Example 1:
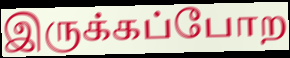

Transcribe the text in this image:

இருக்கப்போற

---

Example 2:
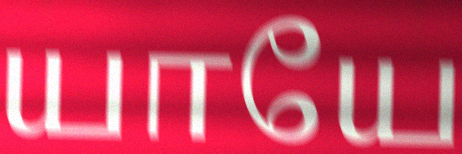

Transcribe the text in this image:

யாயே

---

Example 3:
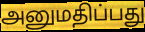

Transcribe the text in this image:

அனுமதிப்பது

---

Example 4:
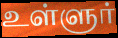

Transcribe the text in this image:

உள்ளுர்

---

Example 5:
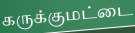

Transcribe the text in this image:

கருக்குமட்டை